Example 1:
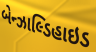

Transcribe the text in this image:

બેન્ઝાલ્ડિહાઇડ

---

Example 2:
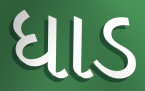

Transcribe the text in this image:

ધાડ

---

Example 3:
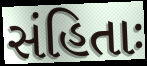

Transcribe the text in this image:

સંહિતાઃ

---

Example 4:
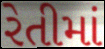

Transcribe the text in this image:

રેતીમાં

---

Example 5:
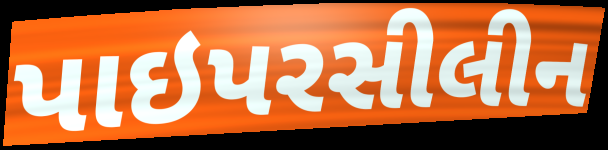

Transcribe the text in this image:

પાઇપરસીલીન